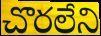
చొరలేని